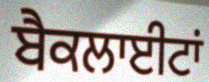
ਬੈਕਲਾਈਟਾਂ